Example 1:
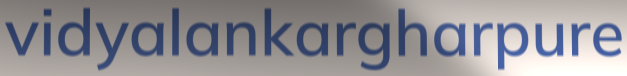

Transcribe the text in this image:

vidyalankargharpure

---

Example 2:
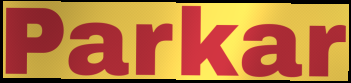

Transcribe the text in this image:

Parkar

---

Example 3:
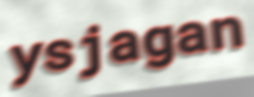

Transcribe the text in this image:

ysjagan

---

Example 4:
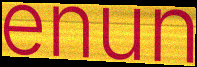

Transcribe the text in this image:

enun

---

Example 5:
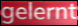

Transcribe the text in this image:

gelernt